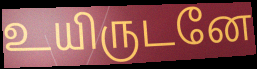
உயிருடனே